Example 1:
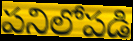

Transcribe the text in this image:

పనిలోపడి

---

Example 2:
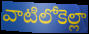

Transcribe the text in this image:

వాటిలోకెల్లా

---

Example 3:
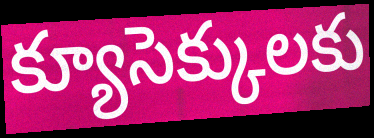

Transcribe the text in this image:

క్యూసెక్కులకు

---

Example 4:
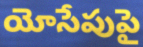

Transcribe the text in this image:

యోసేపుపై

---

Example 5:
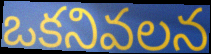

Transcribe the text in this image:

ఒకనివలన